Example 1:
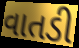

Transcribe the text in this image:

વાતડી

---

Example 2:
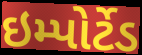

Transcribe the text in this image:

ઇમ્પોર્ટેડ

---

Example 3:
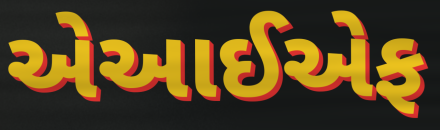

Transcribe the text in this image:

એઆઈએફ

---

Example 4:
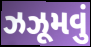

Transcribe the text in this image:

ઝઝૂમવું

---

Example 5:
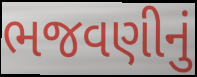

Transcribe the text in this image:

ભજવણીનું